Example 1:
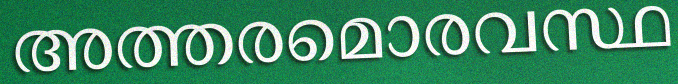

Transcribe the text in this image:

അത്തരമൊരവസ്ഥ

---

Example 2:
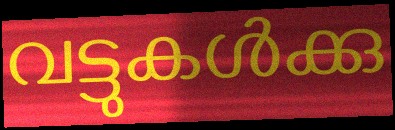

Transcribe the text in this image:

വട്ടുകൾക്കു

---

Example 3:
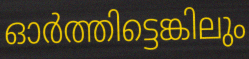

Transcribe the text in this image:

ഓർത്തിട്ടെങ്കിലും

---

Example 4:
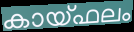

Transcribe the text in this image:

കായ്ഫലം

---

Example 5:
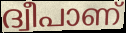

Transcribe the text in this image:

ദ്വീപാണ്